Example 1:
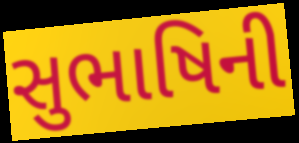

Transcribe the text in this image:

સુભાષિની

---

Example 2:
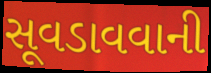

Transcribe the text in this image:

સૂવડાવવાની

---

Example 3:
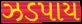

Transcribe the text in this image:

ઝડપાય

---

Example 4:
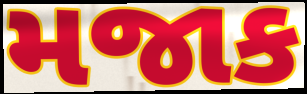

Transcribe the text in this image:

મજાક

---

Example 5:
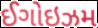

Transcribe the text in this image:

ઈગોઇઝમ